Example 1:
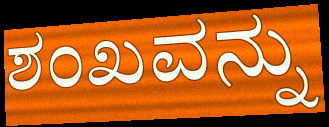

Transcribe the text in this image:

ಶಂಖವನ್ನು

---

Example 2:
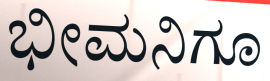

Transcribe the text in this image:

ಭೀಮನಿಗೂ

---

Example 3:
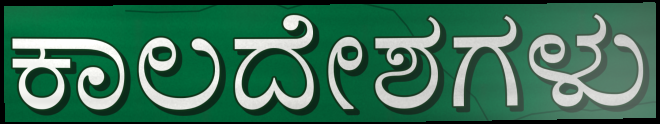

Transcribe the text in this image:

ಕಾಲದೇಶಗಳು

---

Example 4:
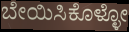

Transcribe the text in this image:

ಬೇಯಿಸಿಕೊಳ್ಳೋ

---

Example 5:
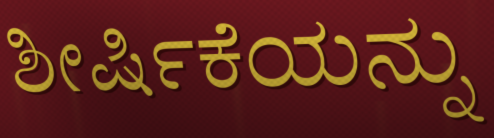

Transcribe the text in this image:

ಶೀರ್ಷಿಕೆಯನ್ನು